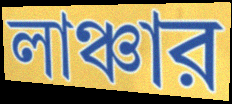
লাঞ্চার